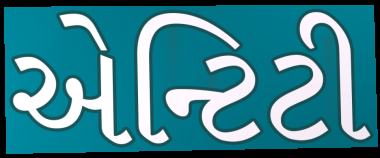
એન્ટિટી